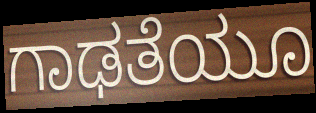
ಗಾಢತೆಯೂ